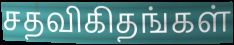
சதவிகிதங்கள்